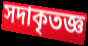
সদাকৃতজ্ঞ